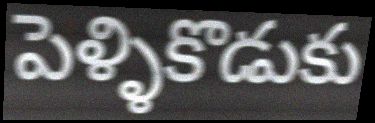
పెళ్ళికొడుకు